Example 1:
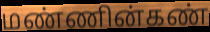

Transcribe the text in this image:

மண்ணின்கண்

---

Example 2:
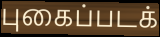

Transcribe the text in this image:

புகைப்படக்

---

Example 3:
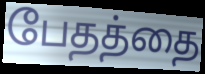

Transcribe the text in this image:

பேதத்தை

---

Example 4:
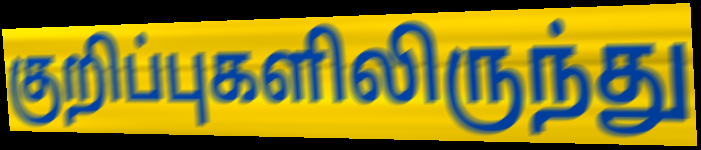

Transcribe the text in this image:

குறிப்புகளிலிருந்து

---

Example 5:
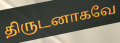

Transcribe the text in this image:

திருடனாகவே